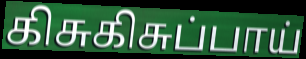
கிசுகிசுப்பாய்